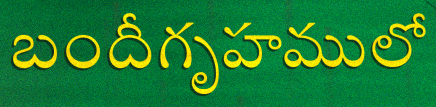
బందీగృహములో